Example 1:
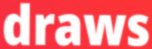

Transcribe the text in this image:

draws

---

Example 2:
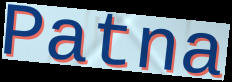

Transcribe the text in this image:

Patna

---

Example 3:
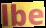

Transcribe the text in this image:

lbe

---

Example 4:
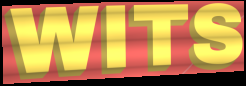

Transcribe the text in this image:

WITS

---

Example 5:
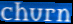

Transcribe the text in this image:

churn